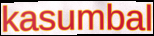
kasumbal